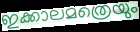
ഇക്കാലമത്രെയും